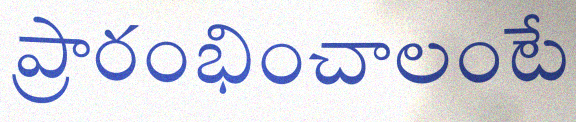
ప్రారంభించాలంటే